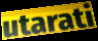
utarati